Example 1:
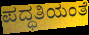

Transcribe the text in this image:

ಪದ್ಧತಿಯಂತೆ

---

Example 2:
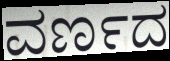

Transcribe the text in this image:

ವರ್ಣದ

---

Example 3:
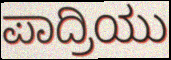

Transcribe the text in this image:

ಪಾದ್ರಿಯು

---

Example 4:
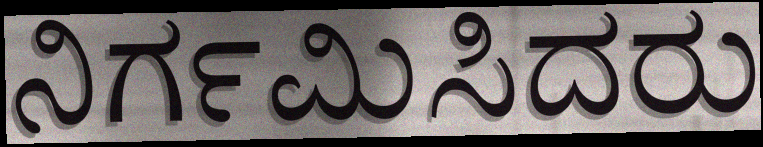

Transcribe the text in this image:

ನಿರ್ಗಮಿಸಿದರು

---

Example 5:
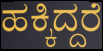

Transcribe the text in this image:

ಹಕ್ಕಿದ್ದರೆ